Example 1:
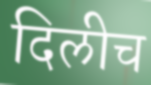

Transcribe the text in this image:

दिलीच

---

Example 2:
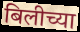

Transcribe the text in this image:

बिलीच्या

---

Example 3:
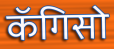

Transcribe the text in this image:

कॅगिसो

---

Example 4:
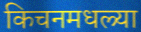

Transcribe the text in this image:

किचनमधल्या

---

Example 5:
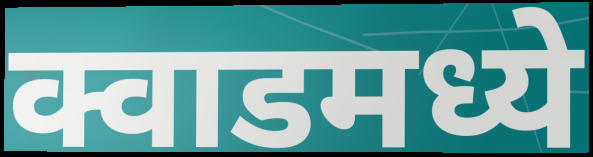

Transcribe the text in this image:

क्वाडमध्ये